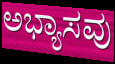
ಅಭ್ಯಾಸವು